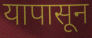
यापासून